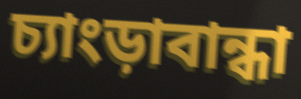
চ্যাংড়াবান্ধা